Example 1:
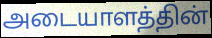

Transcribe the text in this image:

அடையாளத்தின்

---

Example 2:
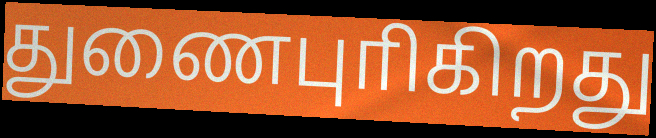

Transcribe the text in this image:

துணைபுரிகிறது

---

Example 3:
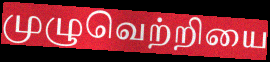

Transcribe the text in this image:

முழுவெற்றியை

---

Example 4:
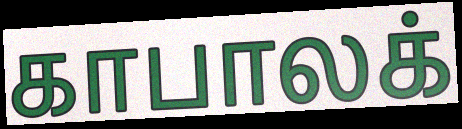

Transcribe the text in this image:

காபாலக்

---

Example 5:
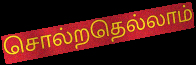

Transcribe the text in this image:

சொல்றதெல்லாம்